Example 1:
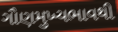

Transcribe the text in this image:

ગૌણમુખ્યભાવથી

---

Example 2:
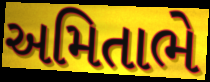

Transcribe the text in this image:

અમિતાભે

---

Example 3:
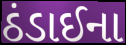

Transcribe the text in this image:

ઠંડાઈના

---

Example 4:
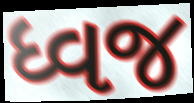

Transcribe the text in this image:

ધ્વજ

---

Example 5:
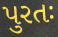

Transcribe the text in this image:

પુરતઃ